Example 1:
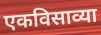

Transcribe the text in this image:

एकविसाव्या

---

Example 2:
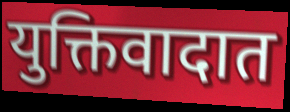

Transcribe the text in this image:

युक्तिवादात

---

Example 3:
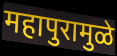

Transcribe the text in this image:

महापुरामुळे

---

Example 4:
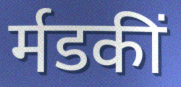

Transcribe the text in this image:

र्मडकीं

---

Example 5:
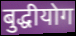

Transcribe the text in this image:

बुद्धीयोग